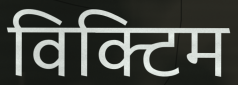
विक्टिम